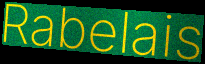
Rabelais